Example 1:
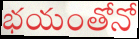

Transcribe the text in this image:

భయంతోనో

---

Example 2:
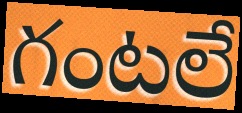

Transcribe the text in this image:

గంటలే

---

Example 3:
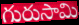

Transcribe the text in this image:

గురుసామి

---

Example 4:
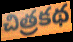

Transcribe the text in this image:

చిత్రకథ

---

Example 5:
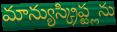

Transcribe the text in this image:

మాన్యుస్క్రిప్ట్లను